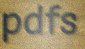
pdfs